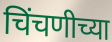
चिंचणीच्या